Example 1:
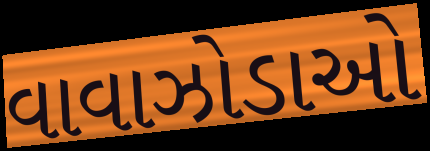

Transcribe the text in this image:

વાવાઝોડાઓ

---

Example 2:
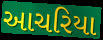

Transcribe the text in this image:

આચરિયા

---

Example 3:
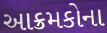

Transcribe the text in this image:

આક્રમકોના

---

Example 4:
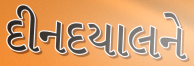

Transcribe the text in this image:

દીનદયાલને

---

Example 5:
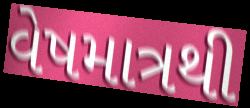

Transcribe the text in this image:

વેષમાત્રથી